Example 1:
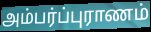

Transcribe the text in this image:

அம்பர்ப்புராணம்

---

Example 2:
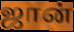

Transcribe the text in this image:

ஜான்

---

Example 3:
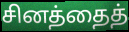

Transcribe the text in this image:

சினத்தைத்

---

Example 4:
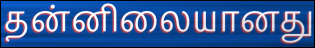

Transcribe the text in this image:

தன்னிலையானது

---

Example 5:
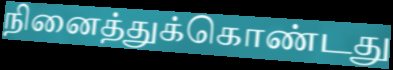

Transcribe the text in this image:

நினைத்துக்கொண்டது